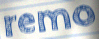
remo